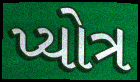
પ્યોત્ર